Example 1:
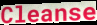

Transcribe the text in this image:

Cleanse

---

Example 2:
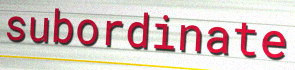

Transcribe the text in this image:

subordinate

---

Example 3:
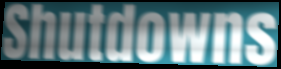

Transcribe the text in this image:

Shutdowns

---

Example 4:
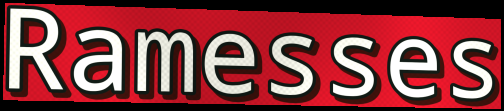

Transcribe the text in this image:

Ramesses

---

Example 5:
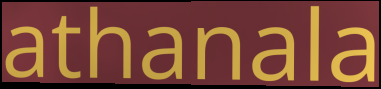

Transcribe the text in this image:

athanala